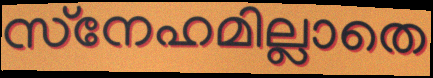
സ്‌നേഹമില്ലാതെ